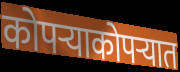
कोपऱ्याकोपऱ्यात